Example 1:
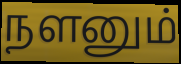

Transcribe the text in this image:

நளனும்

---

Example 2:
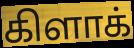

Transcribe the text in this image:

கிளாக்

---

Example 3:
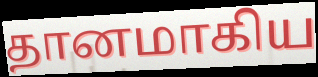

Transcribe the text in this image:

தானமாகிய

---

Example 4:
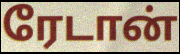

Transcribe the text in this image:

ரேடான்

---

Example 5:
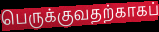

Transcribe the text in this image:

பெருக்குவதற்காகப்